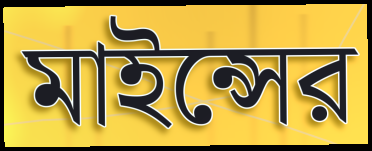
মাইন্সের